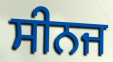
ਸੀਨਜ